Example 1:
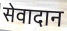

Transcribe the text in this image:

सेवादान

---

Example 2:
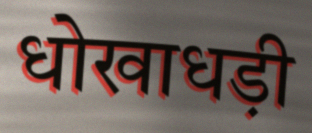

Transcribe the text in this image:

धोखाधड़ी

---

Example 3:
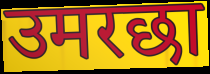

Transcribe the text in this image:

उमरछा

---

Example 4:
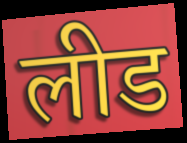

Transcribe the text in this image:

लीड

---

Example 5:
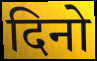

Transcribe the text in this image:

दिनो